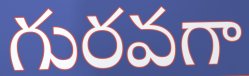
గురవగా